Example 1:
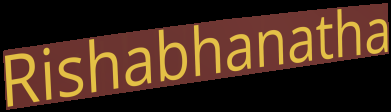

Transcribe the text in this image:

Rishabhanatha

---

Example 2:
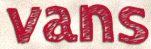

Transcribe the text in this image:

vans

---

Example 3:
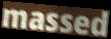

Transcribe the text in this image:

massed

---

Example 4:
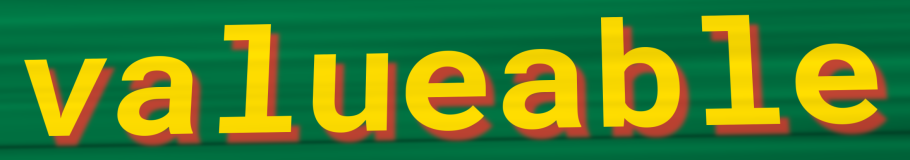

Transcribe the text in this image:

valueable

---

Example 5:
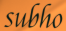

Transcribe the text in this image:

subho